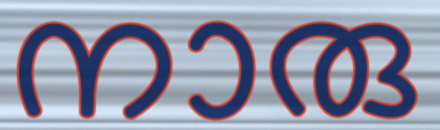
നാരു